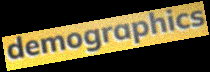
demographics